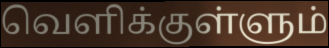
வெளிக்குள்ளும்